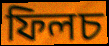
ফিলচ